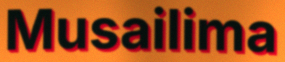
Musailima